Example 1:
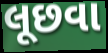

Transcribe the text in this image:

લૂછવા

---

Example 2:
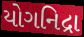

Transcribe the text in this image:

યોગનિદ્રા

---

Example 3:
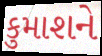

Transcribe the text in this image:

કુમાશને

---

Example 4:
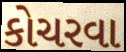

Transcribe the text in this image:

કોચરવા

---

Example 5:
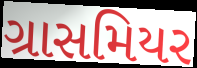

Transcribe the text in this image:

ગ્રાસમિયર